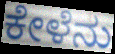
ಕೇಳೆನು